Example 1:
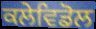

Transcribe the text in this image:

ਕਲੇਵਿਡੋਲ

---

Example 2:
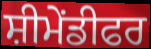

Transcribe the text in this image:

ਸ਼ੀਮੇਂਡੀਫਰ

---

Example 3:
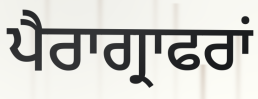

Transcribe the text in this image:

ਪੈਰਾਗ੍ਰਾਫਰਾਂ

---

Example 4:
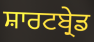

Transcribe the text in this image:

ਸ਼ਾਰਟਬ੍ਰੇਡ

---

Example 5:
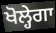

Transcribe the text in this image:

ਖੋਲ੍ਹੇਗਾ